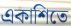
একাশিতে